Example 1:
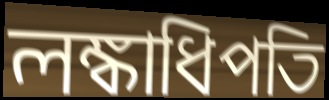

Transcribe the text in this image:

লঙ্কাধিপতি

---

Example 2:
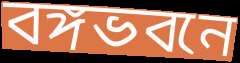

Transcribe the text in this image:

বঙ্গভবনে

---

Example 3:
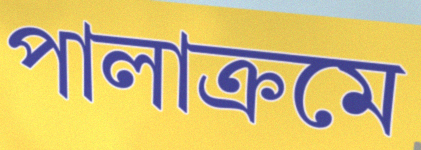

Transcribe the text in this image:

পালাক্রমে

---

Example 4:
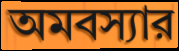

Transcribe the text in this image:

অমবস্যার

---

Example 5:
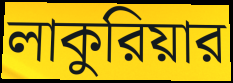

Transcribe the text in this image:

লাকুরিয়ার